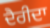
ਦੈਰੀਦਾ